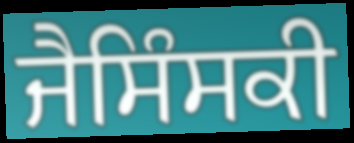
ਜੈਸਿੰਸਕੀ